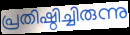
പ്രതിഷ്ഠിച്ചിരുന്നു